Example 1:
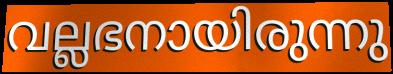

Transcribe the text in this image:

വല്ലഭനായിരുന്നു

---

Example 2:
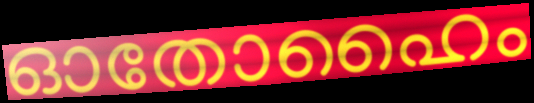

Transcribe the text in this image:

ഓതോഹൈം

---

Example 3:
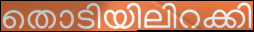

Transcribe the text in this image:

തൊടിയിലിറക്കി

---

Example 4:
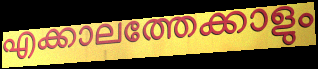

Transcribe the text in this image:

എക്കാലത്തേക്കാളും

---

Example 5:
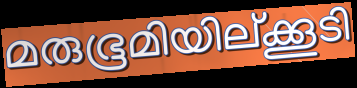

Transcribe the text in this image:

മരുഭൂമിയില്ക്കൂടി